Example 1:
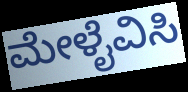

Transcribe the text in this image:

ಮೇಳೈವಿಸಿ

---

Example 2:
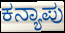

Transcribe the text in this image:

ಕನ್ಯಾಪು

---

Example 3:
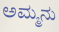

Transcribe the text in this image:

ಅಮ್ಮನು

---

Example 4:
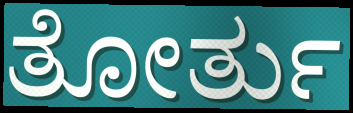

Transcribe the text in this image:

ತೋರ್ತು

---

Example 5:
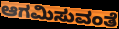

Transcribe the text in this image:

ಆಗಮಿಸುವಂತೆ